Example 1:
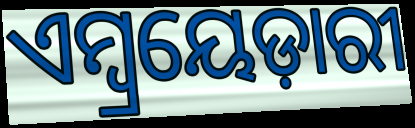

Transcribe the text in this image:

ଏମ୍ୱ୍ରୟେଡ଼ାରୀ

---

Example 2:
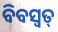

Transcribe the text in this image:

ବିବସ୍ଵତ୍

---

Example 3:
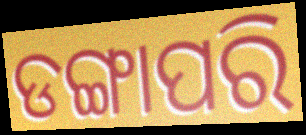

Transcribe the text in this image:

ଡଙ୍ଗାପରି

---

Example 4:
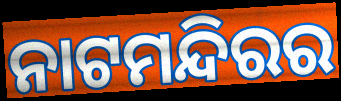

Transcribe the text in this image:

ନାଟମନ୍ଦିରର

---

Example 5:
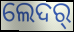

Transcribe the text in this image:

ଲେଦର୍